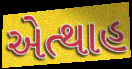
એત્થાહ